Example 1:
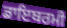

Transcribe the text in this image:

ਡਾਇਥਰਮੀ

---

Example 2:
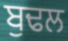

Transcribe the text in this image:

ਬੁਢਲ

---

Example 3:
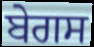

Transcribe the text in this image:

ਬੇਗਸ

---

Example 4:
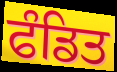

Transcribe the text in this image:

ਫੰਡਿਤ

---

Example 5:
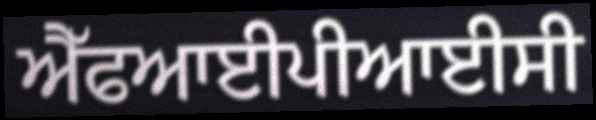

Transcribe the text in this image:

ਐੱਫਆਈਪੀਆਈਸੀ